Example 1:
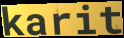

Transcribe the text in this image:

karit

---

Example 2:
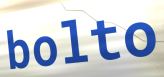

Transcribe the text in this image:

bolto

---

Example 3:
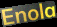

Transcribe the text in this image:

Enola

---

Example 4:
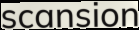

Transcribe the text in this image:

scansion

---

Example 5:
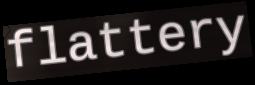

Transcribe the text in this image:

flattery